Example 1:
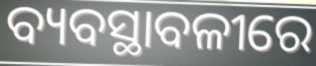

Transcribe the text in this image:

ବ୍ୟବସ୍ଥାବଳୀରେ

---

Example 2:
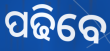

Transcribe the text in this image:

ପଢିବେ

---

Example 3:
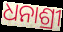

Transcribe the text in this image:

ଧନାଶ୍ରୀ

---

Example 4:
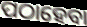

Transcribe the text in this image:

ପଠାହେବା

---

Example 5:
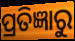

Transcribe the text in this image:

ପ୍ରତିଜ୍ଞାରୁ